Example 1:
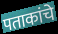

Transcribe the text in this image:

पताकांचे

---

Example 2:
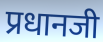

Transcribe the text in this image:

प्रधानजी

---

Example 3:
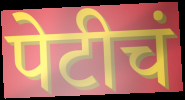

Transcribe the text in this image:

पेटीचं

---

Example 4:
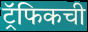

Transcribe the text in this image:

ट्रॅफिकची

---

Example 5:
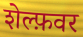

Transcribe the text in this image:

शेल्फ़वर